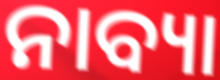
ନାବ୍ୟା